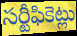
సర్టీఫికెట్లు